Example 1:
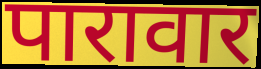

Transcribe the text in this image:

पारावार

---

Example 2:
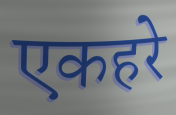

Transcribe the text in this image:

एकहरे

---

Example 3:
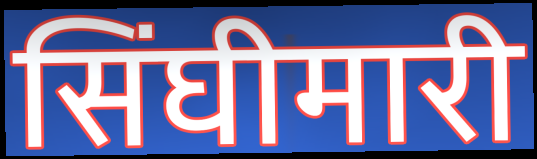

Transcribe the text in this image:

सिंघीमारी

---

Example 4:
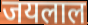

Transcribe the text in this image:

जयलाल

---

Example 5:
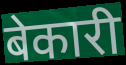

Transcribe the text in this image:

बेकारी